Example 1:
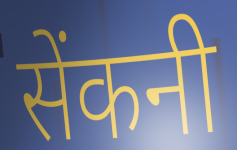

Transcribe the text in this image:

सेंकनी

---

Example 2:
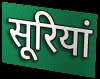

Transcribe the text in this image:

सूरियां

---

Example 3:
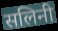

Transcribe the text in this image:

सलिनी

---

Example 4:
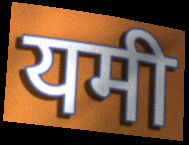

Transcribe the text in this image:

यमी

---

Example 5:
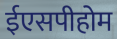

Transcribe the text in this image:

ईएसपीहोम